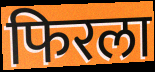
फिरला